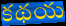
కథయ